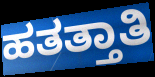
ಹತತ್ತಾತಿ